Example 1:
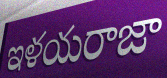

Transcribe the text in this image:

ఇళయరాజా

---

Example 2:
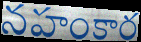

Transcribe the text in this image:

నహంకార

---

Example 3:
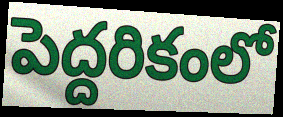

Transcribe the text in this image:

పెద్దరికంలో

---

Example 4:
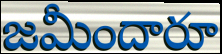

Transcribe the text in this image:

జమీందారూ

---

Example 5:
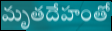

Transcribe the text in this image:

మృతదేహంతో